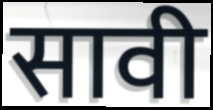
सावी